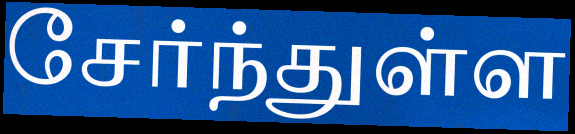
சேர்ந்துள்ள